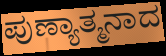
ಪುಣ್ಯಾತ್ಮನಾದ